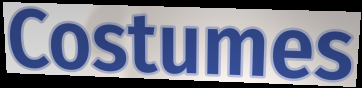
Costumes